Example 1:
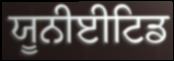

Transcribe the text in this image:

ਯੂਨੀਈਟਿਡ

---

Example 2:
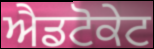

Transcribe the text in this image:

ਐਡਟੋਕੇਟ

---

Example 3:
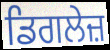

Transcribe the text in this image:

ਡਿਗਲੇਜ਼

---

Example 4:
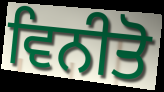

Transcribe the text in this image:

ਵਿਨੀਤੋ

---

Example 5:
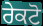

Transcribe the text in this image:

ਰੇਕਟੋ